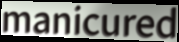
manicured